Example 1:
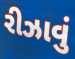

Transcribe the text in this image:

રીઝાવું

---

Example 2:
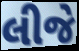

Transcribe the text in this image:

લીજે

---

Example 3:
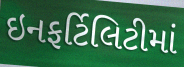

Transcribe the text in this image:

ઇનફર્ટિલિટીમાં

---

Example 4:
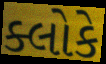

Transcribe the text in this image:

ક્લોકે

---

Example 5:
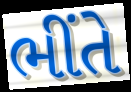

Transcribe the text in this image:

ભીંતે